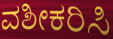
ವಶೀಕರಿಸಿ